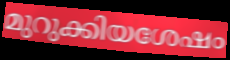
മുറുക്കിയശേഷം